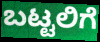
ಬಟ್ಟಲಿಗೆ